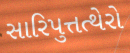
સારિપુત્તત્થેરો